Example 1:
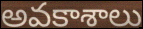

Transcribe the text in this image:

అవకాశాలు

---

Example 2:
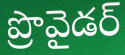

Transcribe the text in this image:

ప్రొవైడర్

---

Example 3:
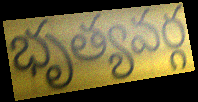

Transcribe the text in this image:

భృత్యవర్గ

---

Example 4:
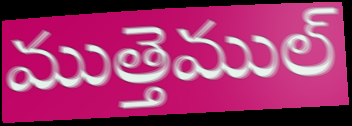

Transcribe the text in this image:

ముత్తెముల్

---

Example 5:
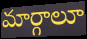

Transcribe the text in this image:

మార్గాలూ